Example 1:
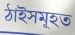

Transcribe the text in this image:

ঠাইসমূহত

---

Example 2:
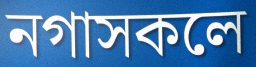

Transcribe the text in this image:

নগাসকলে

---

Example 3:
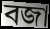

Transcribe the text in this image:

বজা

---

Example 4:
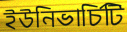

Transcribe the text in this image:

ইউনিভাৰ্চিটি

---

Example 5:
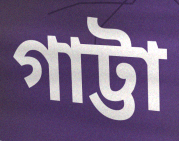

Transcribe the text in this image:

গাট্টা